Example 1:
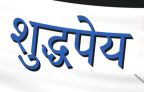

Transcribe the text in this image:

शुद्धपेय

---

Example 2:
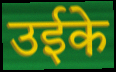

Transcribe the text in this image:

उईके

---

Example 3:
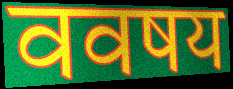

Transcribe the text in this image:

ववषय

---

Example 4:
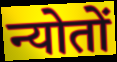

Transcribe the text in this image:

न्योतों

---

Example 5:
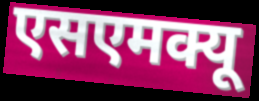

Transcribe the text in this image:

एसएमक्यू